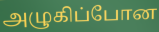
அழுகிப்போன